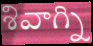
శివాగ్ని